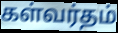
கள்வர்தம்